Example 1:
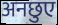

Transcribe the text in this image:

अनछुए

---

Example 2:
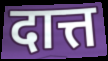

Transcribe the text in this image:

दात्त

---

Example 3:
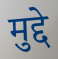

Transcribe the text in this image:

मुद्दे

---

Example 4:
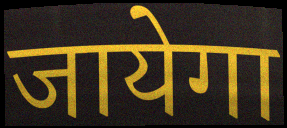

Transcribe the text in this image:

जायेगा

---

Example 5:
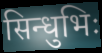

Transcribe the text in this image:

सिन्धुभिः